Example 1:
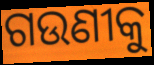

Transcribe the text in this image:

ଗଉଣୀକୁ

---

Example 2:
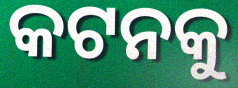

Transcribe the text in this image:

କଟନକୁ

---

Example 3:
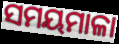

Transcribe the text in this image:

ସମୟମାଳା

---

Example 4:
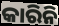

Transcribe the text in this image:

କାରିନି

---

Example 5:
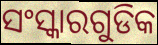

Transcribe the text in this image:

ସଂସ୍କାରଗୁଡିକ